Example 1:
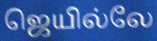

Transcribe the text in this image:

ஜெயில்லே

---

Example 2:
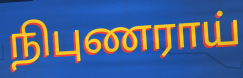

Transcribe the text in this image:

நிபுணராய்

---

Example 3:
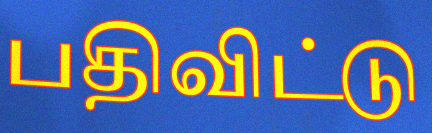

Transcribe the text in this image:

பதிவிட்டு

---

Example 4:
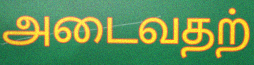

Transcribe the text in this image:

அடைவதற்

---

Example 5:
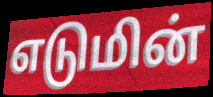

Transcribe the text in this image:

எடுமின்